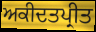
ਅਕੀਦਤਪ੍ਰੀਤ